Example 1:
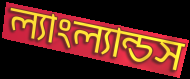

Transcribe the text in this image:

ল্যাংল্যান্ডস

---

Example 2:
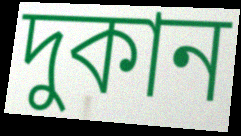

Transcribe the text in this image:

দুকান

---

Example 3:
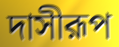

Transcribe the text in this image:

দাসীরূপ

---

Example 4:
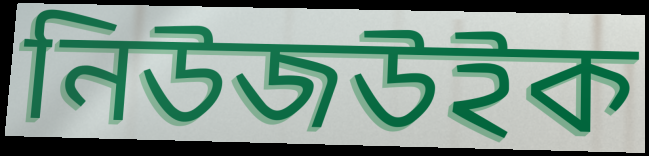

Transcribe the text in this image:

নিউজউইক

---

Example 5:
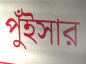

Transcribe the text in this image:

পুঁইসার